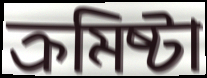
ক্ৰমিষ্টা